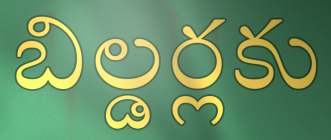
బిల్డర్లకు